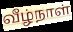
வீழ்நாள்